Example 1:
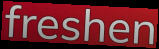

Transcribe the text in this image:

freshen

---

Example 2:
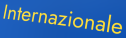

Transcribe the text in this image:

Internazionale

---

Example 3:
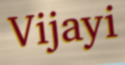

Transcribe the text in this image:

Vijayi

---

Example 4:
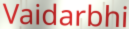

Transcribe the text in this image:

Vaidarbhi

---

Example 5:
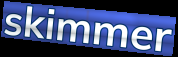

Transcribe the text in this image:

skimmer